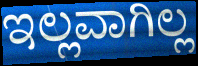
ಇಲ್ಲವಾಗಿಲ್ಲ